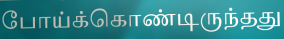
போய்க்கொண்டிருந்தது